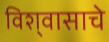
विश्वासाचे